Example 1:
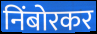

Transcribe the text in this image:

निंबोरकर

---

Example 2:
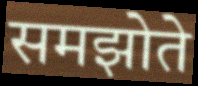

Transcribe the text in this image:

समझोते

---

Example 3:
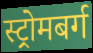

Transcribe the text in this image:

स्ट्रोमबर्ग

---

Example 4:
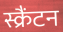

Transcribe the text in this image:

स्क्रैंटन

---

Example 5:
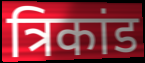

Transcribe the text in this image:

त्रिकांड